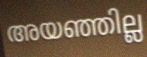
അയഞ്ഞില്ല